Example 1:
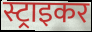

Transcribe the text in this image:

स्ट्राइकर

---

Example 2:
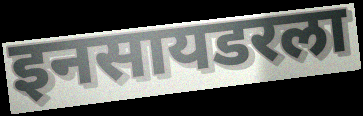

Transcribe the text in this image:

इनसायडरला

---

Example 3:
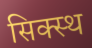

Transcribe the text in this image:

सिक्स्थ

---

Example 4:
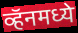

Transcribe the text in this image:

व्हॅनमध्ये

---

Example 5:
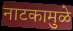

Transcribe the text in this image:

नाटकामुळे